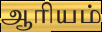
ஆரியம்